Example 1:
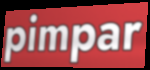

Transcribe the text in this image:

pimpar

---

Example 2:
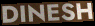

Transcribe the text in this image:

DINESH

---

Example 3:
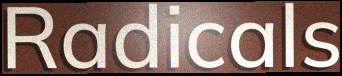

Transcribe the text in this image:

Radicals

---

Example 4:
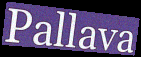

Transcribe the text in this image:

Pallava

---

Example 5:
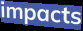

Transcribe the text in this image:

impacts